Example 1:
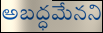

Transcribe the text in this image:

అబద్ధమేనని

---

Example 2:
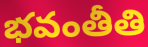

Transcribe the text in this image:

భవంతీతి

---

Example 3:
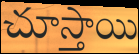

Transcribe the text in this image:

చూస్తాయి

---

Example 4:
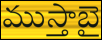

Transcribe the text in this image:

ముస్తాబై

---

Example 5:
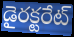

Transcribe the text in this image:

డైరక్టరేట్